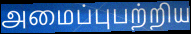
அமைப்புபற்றிய